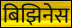
बिझिनेस